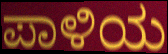
ಪಾಳಿಯ